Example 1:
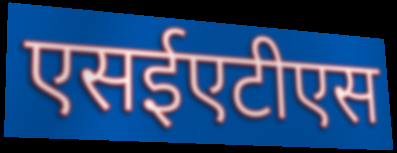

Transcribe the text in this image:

एसईएटीएस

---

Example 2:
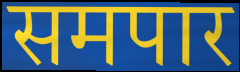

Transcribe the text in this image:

समपार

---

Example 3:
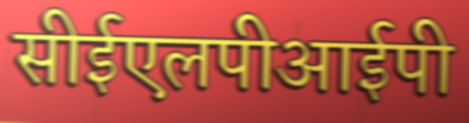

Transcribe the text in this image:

सीईएलपीआईपी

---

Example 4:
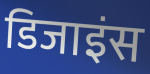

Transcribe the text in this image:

डिजाइंस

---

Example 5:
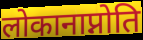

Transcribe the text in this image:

लोकानाप्नोति